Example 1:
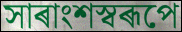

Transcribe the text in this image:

সাৰাংশস্বৰূপে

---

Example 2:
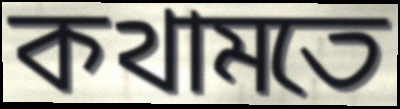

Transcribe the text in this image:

কথামতে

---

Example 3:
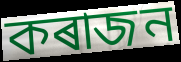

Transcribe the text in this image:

কৰাজন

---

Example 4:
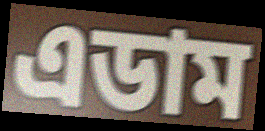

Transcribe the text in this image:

এডাম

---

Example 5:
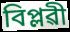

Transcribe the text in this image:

বিপ্লৱী